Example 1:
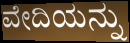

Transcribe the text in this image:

ವೇದಿಯನ್ನು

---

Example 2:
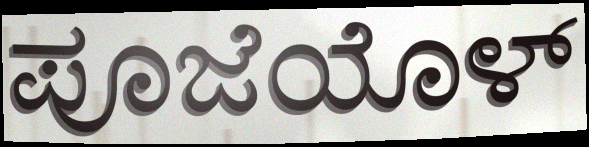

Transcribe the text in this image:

ಪೂಜೆಯೊಳ್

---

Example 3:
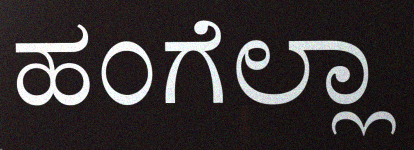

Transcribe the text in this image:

ಹಂಗೆಲ್ಲಾ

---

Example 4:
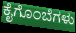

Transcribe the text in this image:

ಕೈಗೊಂಬೆಗಳು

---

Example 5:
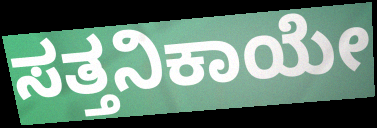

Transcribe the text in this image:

ಸತ್ತನಿಕಾಯೇ